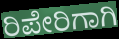
ರಿಪೇರಿಗಾಗಿ